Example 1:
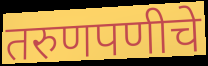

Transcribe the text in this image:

तरुणपणीचे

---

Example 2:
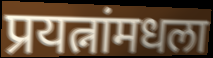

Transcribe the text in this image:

प्रयत्नांमधला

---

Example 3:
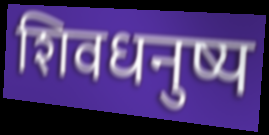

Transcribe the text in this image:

शिवधनुष्य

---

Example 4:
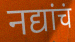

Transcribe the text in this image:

नद्यांचं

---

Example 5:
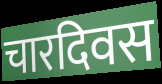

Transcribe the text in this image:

चारदिवस